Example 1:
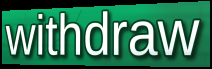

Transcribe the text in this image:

withdraw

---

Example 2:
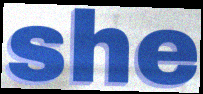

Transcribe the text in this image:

she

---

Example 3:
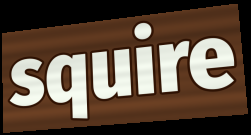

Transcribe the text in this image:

squire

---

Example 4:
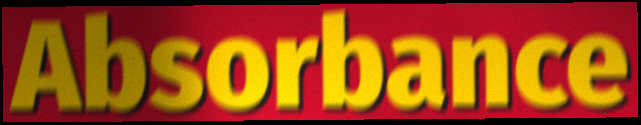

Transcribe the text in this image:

Absorbance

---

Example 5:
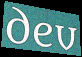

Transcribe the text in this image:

deu